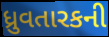
ધ્રુવતારકની